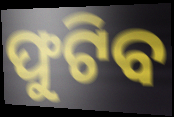
ଫୁଟିବ